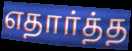
எதார்த்த